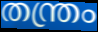
തന്ത്രം